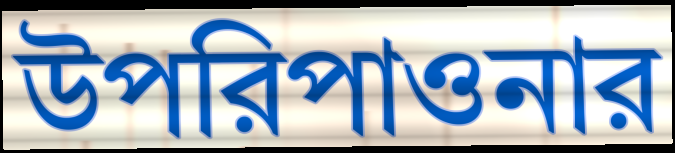
উপরিপাওনার